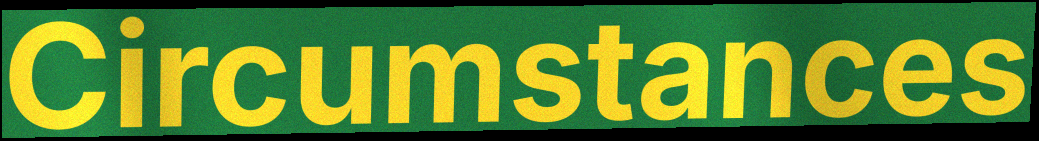
Circumstances